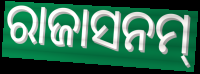
ରାଜାସନମ୍